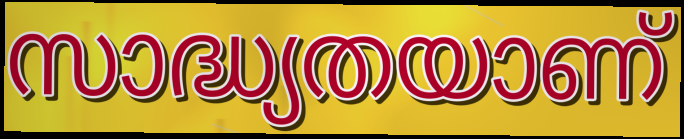
സാദ്ധ്യതയാണ്